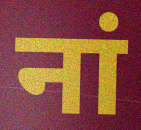
नां